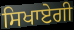
ਸਿਖਾਏਗੀ